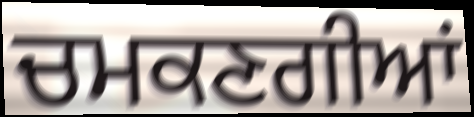
ਚਮਕਣਗੀਆਂ